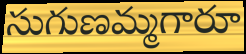
సుగుణమ్మగారూ